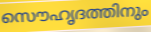
സൌഹൃദത്തിനും